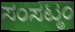
ಸಂಸಟ್ಠಂ